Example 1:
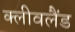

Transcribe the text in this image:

क्‍लीवलैंड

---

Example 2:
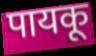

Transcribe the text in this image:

पायकू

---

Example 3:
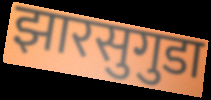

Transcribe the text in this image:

झारसुगुडा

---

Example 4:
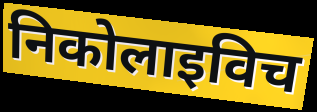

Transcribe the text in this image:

निकोलाइविच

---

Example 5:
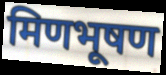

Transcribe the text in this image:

मिणभूषण